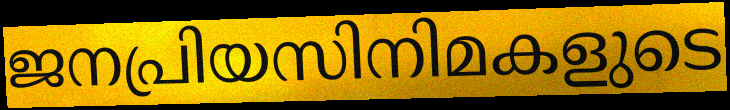
ജനപ്രിയസിനിമകളുടെ